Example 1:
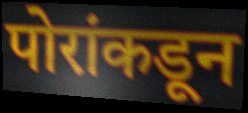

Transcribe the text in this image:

पोरांकडून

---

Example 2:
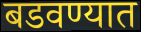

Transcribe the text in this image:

बडवण्यात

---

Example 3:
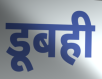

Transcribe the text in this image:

डूबही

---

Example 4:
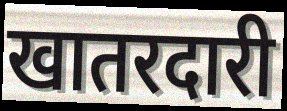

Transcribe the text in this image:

खातरदारी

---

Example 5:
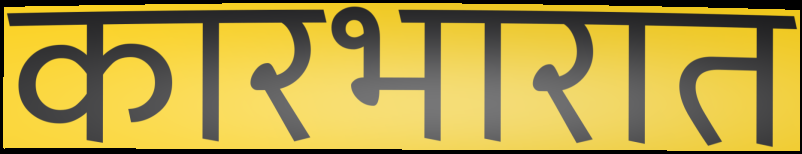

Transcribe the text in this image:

कारभारात